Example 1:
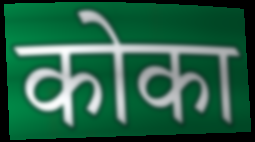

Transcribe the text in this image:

कोका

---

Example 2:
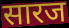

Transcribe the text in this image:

सारज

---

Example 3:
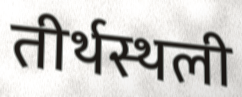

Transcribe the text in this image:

तीर्थस्थली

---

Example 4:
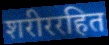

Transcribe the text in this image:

शरीररहित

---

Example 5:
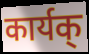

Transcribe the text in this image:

कार्यक्